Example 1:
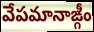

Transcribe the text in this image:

వేపమానాఙ్గీం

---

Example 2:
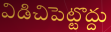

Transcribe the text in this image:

విడిచిపెట్టొద్దు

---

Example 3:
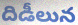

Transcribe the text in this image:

దిడీలున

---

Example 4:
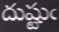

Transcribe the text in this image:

దుష్టుఁ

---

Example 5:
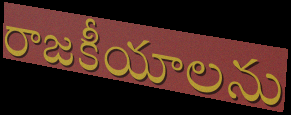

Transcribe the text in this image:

రాజకీయాలను